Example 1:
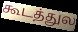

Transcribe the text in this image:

கூடத்துல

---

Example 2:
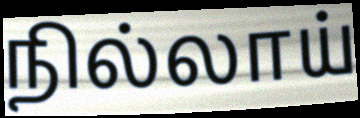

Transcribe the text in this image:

நில்லாய்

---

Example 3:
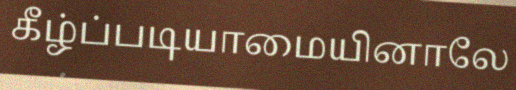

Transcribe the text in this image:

கீழ்ப்படியாமையினாலே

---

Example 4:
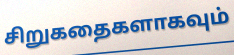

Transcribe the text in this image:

சிறுகதைகளாகவும்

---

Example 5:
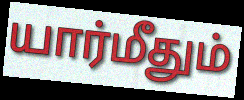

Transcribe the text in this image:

யார்மீதும்